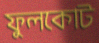
ফুলকোট